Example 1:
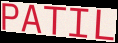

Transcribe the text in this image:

PATIL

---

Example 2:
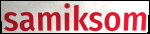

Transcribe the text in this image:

samiksom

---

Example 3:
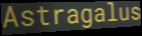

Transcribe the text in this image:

Astragalus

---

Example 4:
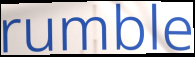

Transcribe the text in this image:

rumble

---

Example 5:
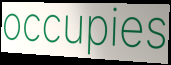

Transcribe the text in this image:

occupies